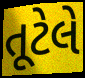
તૂટેલે